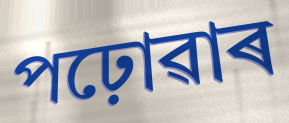
পঢ়োৱাৰ